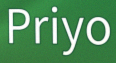
Priyo